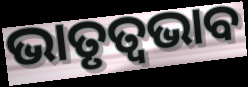
ଭାତୃତ୍ବଭାବ